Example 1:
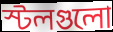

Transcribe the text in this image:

স্টলগুলো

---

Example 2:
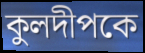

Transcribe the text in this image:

কুলদীপকে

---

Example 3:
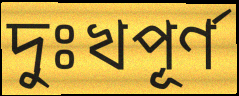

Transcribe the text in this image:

দুঃখপূর্ণ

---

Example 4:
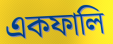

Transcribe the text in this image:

একফালি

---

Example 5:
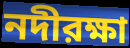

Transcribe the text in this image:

নদীরক্ষা